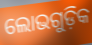
ଲୋଭଗୁଡ଼ିକ